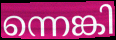
ന്നെങ്കി